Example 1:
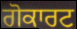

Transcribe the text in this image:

ਗੋਕਾਰਟ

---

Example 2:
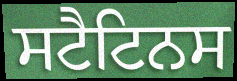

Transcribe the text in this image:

ਸਟੈਟਿਨਸ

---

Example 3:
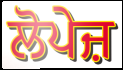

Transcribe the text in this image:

ਲੋਪੇਜ਼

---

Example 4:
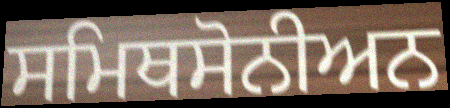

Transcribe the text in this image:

ਸਮਿਥਸੋਨੀਅਨ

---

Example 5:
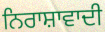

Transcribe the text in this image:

ਨਿਰਾਸ਼ਾਵਾਦੀ